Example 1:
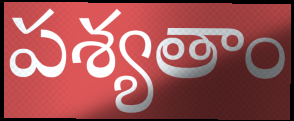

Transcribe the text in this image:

పశ్యతాం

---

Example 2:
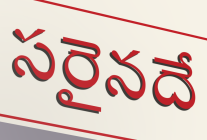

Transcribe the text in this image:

సరైనదే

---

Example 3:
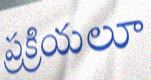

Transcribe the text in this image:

ప్రక్రియలూ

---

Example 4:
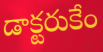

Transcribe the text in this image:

డాక్టరుకేం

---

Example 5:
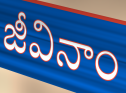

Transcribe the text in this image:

జీవినాం